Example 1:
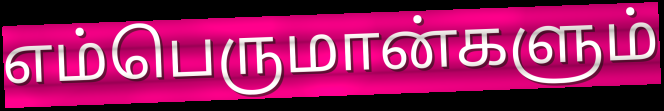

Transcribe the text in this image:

எம்பெருமான்களும்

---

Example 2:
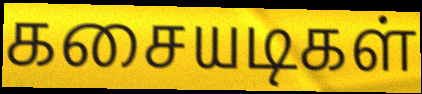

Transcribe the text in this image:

கசையடிகள்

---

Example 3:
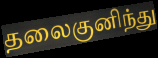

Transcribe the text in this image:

தலைகுனிந்து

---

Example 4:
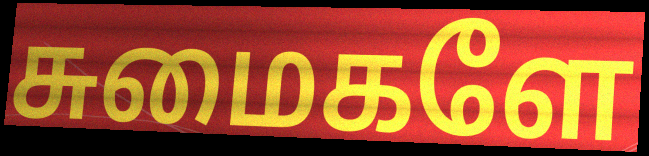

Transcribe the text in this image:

சுமைகளே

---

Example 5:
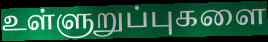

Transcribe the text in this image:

உள்ளுறுப்புகளை